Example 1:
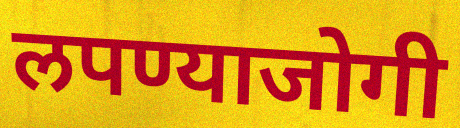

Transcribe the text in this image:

लपण्याजोगी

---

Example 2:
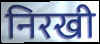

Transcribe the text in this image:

निरखी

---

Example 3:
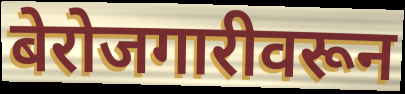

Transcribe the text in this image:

बेरोजगारीवरून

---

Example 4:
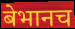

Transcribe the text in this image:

बेभानच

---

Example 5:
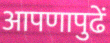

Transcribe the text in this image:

आपणापुढें